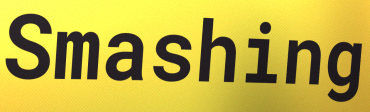
Smashing